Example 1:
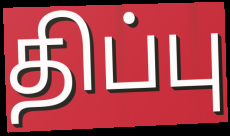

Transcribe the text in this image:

திப்பு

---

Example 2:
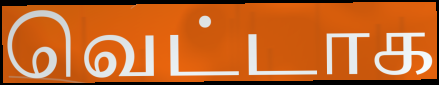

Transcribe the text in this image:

வெட்டாக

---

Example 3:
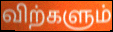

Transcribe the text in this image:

விற்களும்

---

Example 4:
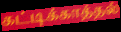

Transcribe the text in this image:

கட்டிக்காத்தல்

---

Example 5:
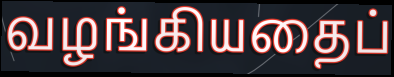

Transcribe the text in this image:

வழங்கியதைப்